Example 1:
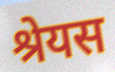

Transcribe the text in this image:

श्रेयस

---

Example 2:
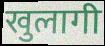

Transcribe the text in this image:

खुलागी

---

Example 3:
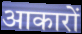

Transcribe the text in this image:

आकारों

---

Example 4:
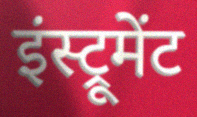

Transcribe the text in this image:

इंस्ट्रूमेंट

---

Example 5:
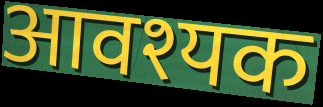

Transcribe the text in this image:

आवश्यक